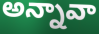
అన్నావా